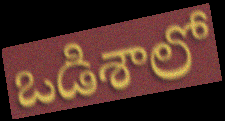
ఒడిశాలో